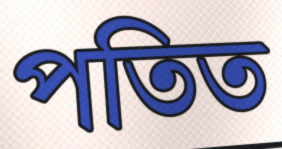
পতিত